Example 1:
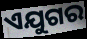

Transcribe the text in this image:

ଏଯୁଗର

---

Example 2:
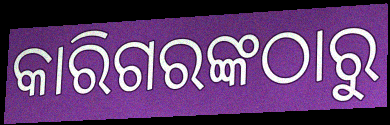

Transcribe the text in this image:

କାରିଗରଙ୍କଠାରୁ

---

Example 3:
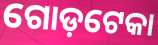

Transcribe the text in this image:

ଗୋଡ଼ଟେକା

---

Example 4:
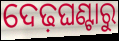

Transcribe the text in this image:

ଦେଢ଼ଘଣ୍ଟାରୁ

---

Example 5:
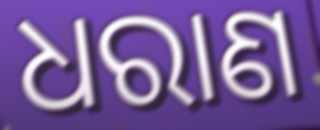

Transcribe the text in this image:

ଧରାଣ